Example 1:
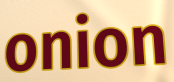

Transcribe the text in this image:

onion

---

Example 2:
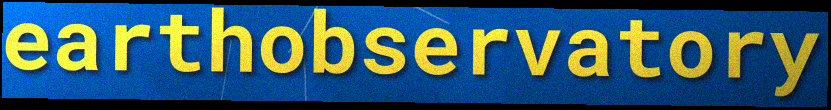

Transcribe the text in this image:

earthobservatory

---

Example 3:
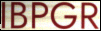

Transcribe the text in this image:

IBPGR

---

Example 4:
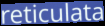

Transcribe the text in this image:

reticulata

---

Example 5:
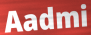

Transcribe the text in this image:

Aadmi